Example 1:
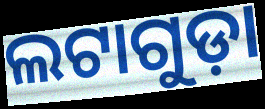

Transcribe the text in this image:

ଲଟାଗୁଡ଼ା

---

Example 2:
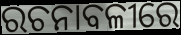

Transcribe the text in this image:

ରଚନାବଳୀରେ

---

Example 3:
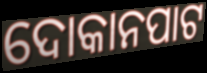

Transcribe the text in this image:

ଦୋକାନପାଟ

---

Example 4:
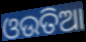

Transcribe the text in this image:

ଓଉତିଆ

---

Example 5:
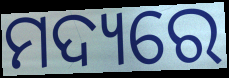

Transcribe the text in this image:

ମଦ୍ୟରେ